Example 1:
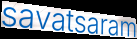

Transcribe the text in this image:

savatsaram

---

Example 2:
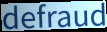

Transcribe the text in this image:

defraud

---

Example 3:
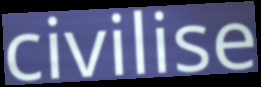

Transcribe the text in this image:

civilise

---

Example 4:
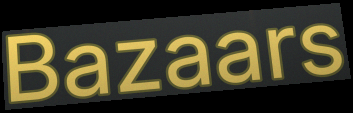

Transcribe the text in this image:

Bazaars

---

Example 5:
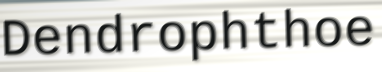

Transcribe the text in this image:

Dendrophthoe